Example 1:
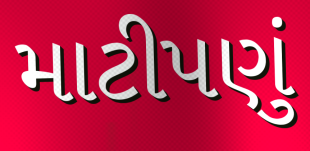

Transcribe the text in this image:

માટીપણું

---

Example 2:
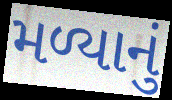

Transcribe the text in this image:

મળ્યાનું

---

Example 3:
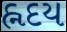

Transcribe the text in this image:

હ્નદય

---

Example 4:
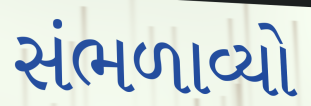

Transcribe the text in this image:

સંભળાવ્યો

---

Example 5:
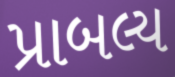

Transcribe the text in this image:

પ્રાબલ્ય